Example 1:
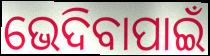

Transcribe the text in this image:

ଭେଦିବାପାଇଁ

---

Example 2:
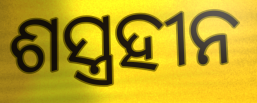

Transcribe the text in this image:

ଶସ୍ତ୍ରହୀନ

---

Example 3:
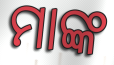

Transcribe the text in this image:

ମାଙ୍କ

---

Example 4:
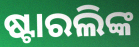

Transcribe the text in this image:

ଷ୍ଟାରଲିଙ୍କ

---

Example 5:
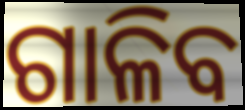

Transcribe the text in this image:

ଗାଳିବ